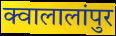
क्वालालांपुर